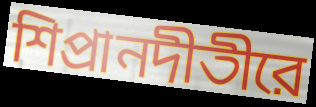
শিপ্রানদীতীরে